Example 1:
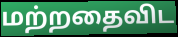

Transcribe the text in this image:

மற்றதைவிட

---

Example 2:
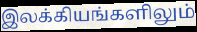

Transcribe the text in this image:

இலக்கியங்களிலும்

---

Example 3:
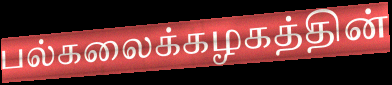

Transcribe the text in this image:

பல்கலைக்கழகத்தின்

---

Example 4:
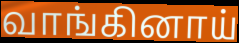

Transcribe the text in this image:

வாங்கினாய்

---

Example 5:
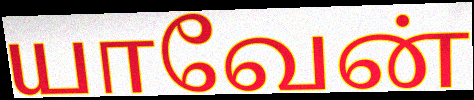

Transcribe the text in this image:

யாவேன்